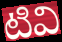
టివి